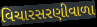
વિચારસરણીવાળા